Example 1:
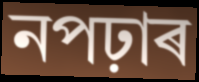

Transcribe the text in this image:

নপঢ়াৰ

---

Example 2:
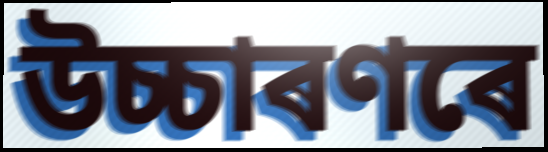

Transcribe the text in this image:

উচ্চাৰণৰে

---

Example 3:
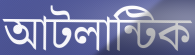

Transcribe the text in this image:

আটলান্টিক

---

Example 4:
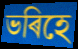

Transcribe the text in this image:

ভৰিহে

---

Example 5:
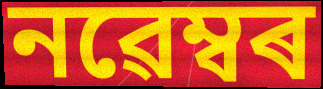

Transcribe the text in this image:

নৱেম্বৰ